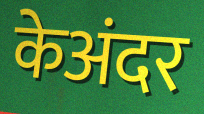
केअंदर